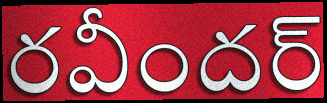
రవీందర్